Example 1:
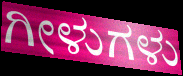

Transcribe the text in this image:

ಗೀಳುಗಳು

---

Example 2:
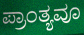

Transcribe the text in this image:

ಪ್ರಾಂತ್ಯವೂ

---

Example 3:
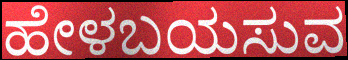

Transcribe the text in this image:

ಹೇಳಬಯಸುವ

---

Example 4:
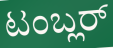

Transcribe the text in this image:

ಟಂಬ್ಲರ್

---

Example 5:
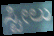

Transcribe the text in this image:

ಸ್ಟೀಲು